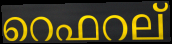
റെഫറല്